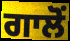
ਗਾਲੋਂ